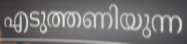
എടുത്തണിയുന്ന